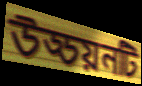
উড্ডয়নটি